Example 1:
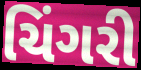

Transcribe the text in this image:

ચિંગરી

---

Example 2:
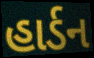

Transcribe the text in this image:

હાર્ડન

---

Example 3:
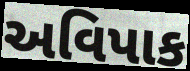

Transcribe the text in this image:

અવિપાક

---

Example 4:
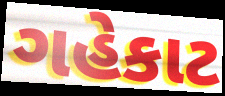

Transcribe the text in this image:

ગહેકાટ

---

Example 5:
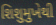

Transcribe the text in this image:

શિશુમુખેથી